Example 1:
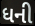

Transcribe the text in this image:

ધની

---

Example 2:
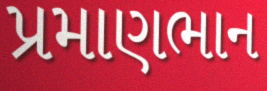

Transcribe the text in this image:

પ્રમાણભાન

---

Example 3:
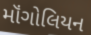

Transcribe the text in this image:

મૉંગોલિયન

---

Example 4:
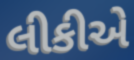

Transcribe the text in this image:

લીકીએ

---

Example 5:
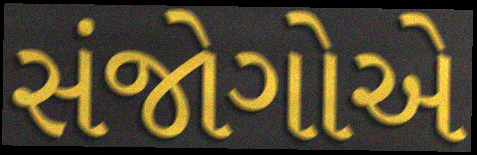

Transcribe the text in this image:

સંજોગોએ